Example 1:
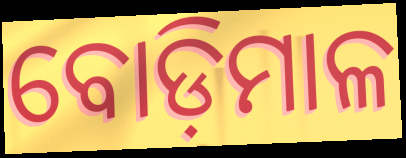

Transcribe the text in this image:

ବୋଡ଼ିମାଳ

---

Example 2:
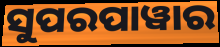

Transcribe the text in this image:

ସୁପରପାୱାର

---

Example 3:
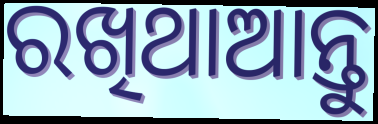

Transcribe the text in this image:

ରଖିଥାଆନ୍ତୁ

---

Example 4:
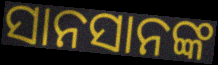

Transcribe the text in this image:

ସାନସାନଙ୍କ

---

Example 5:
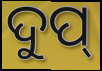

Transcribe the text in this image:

ଦୁପ୍